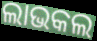
ଲାଭକଲ